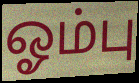
ஓம்பு